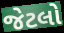
જેટલો